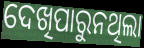
ଦେଖିପାରୁନଥିଲା